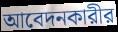
আবেদনকারীর